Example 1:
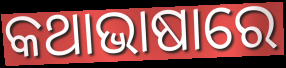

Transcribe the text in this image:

କଥାଭାଷାରେ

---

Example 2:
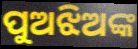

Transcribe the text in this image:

ପୁଅଝିଅଙ୍କ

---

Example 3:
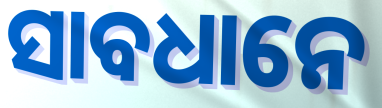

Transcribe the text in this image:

ସାବଧାନେ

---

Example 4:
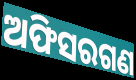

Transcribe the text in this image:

ଅଫିସରଗଣ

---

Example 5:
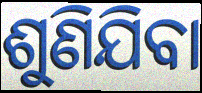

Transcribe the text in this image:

ଶୁଣିଯିବା